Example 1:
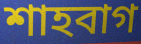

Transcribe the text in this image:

শাহবাগ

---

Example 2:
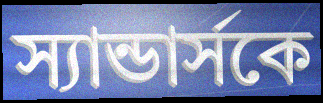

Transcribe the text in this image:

স্যান্ডার্সকে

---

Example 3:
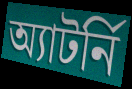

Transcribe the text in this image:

অ্যাটর্নি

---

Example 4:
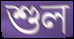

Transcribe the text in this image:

শুল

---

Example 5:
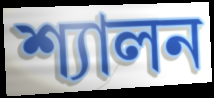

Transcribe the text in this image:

শ্যালন